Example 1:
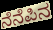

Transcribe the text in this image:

ನೆನೆಪಿನ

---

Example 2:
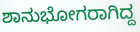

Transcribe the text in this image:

ಶಾನುಭೋಗರಾಗಿದ್ದ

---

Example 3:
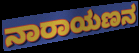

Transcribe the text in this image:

ನಾರಾಯಣನ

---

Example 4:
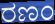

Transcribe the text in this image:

ರಣಂ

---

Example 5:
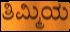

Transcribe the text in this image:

ತಿಮ್ಮಿಯ